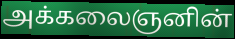
அக்கலைஞனின்